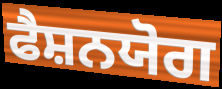
ਫੈਸ਼ਨਯੋਗ